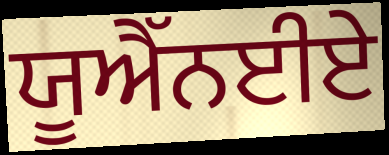
ਯੂਐੱਨਈਏ